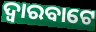
ଦ୍ୱାରବାଟେ